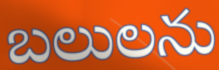
బలులను